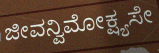
ಜೀವನ್ವಿಮೋಕ್ಷ್ಯಸೇ